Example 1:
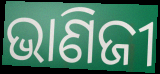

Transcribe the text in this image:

ଭାଣିଜୀ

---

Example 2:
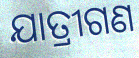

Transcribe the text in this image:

ଯାତ୍ରୀଗଣ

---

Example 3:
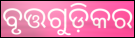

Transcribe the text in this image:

ବୃତ୍ତଗୁଡ଼ିକର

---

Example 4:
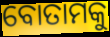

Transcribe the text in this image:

ବୋତାମକୁ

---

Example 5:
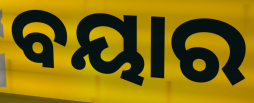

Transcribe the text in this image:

ବୟାର